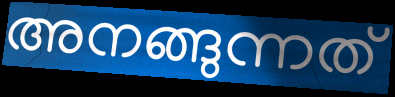
അനങ്ങുന്നത്